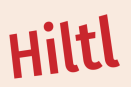
Hiltl